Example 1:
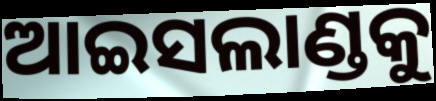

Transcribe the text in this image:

ଆଇସଲାଣ୍ଡକୁ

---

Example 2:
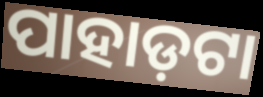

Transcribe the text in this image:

ପାହାଡ଼ଟା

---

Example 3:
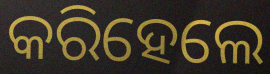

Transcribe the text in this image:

କରିହେଲେ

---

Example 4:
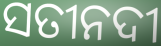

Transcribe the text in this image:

ସତୀନଦୀ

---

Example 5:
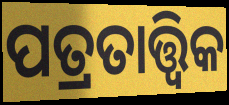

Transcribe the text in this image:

ପତ୍ରତାତ୍ତ୍ୱିକ